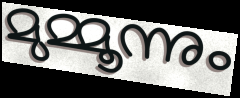
മുമ്മൂന്നും